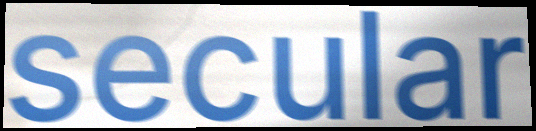
secular